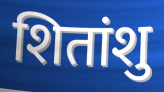
शितांशु